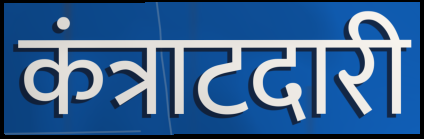
कंत्राटदारी